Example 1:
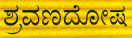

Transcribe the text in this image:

ಶ್ರವಣದೋಷ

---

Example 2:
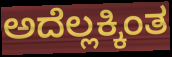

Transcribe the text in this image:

ಅದೆಲ್ಲಕ್ಕಿಂತ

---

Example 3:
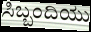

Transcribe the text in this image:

ಸಿಬ್ಬಂದಿಯು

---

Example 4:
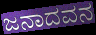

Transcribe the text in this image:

ಜನಾದವನ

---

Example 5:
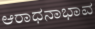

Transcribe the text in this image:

ಆರಾಧನಾಭಾವ